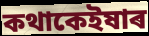
কথাকেইষাৰ